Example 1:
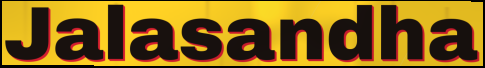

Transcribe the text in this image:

Jalasandha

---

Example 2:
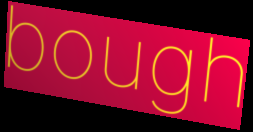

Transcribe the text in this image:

bough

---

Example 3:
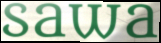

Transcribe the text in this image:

sawa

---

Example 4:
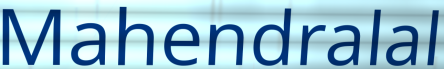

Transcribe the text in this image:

Mahendralal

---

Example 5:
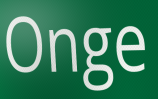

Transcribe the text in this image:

Onge